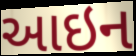
આઇન